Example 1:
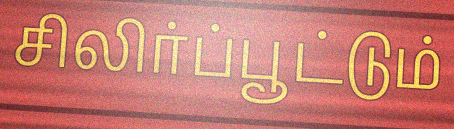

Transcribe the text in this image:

சிலிர்ப்பூட்டும்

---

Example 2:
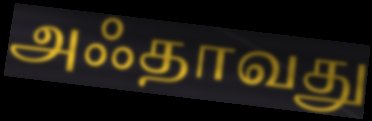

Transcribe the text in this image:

அஃதாவது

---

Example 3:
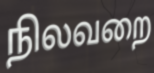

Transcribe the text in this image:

நிலவறை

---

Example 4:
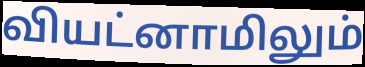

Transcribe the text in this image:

வியட்னாமிலும்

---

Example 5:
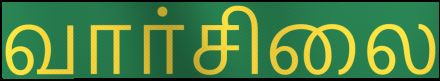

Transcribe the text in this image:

வார்சிலை